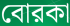
বোরকা